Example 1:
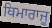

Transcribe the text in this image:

ਥਿਮਾਰਾਜੂ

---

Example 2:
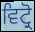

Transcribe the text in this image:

ਵਿਟ੍ਰੋ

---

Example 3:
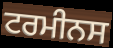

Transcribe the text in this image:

ਟਰਮੀਨਸ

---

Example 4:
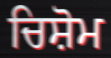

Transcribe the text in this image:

ਚਿਸ਼ੋਮ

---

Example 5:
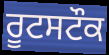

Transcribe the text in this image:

ਰੂਟਸਟੌਕ